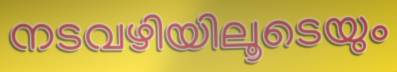
നടവഴിയിലൂടെയും